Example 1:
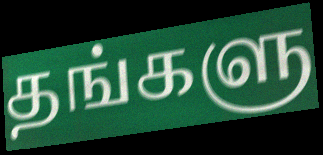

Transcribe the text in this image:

தங்களு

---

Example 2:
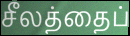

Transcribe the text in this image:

சீலத்தைப்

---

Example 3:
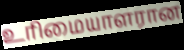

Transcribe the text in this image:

உரிமையாளரான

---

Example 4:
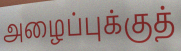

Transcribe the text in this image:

அழைப்புக்குத்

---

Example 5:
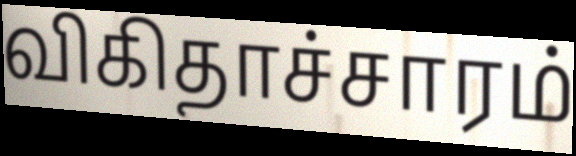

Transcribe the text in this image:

விகிதாச்சாரம்